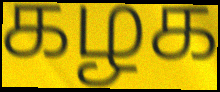
கழக